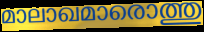
മാലാഖമാരൊത്തു